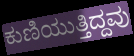
ಕುಣಿಯುತ್ತಿದ್ದವು